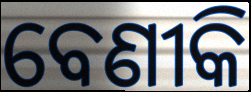
ବେଣୀକି